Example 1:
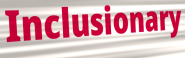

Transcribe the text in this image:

Inclusionary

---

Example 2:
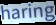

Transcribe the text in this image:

haring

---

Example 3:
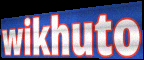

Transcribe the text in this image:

wikhuto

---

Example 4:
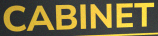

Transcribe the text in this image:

CABINET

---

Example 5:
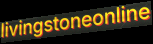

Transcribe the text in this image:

livingstoneonline